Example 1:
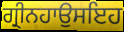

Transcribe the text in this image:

ਗ੍ਰੀਨਹਾਉਸਇਹ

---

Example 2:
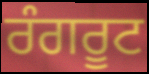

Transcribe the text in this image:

ਰੰਗਰੂਟ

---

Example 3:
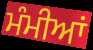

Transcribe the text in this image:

ਮੰਮੀਆਂ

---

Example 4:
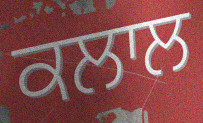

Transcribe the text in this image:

ਕਲਾਲ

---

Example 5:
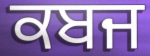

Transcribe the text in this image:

ਕਬਜ